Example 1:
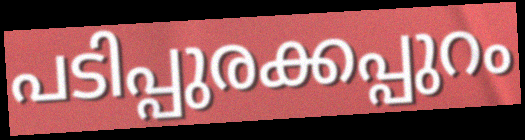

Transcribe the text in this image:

പടിപ്പുരക്കപ്പുറം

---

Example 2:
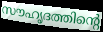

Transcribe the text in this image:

സൗഹൃദത്തിന്റെ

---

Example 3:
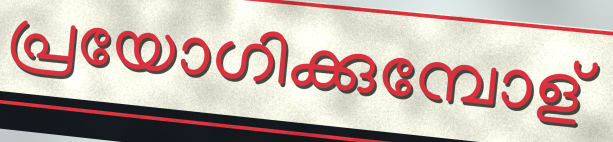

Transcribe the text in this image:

പ്രയോഗിക്കുമ്പോള്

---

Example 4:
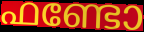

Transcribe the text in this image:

ഫണ്ടോ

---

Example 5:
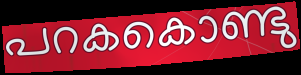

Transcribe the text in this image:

പറകകൊണ്ടു